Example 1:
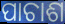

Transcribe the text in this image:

ପାଚାଶ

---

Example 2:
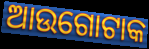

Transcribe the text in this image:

ଆଉଗୋଟାକ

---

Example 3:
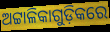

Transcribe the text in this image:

ଅଟ୍ଟାଳିକାଗୁଡ଼ିକରେ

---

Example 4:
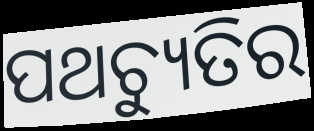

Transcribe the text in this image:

ପଥଚ୍ୟୁତିର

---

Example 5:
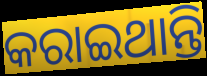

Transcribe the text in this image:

କରାଇଥାନ୍ତି